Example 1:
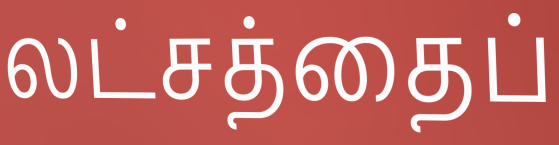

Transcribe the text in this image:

லட்சத்தைப்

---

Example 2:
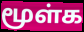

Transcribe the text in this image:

மூள்க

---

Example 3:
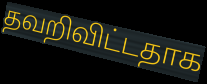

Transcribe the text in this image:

தவறிவிட்டதாக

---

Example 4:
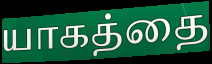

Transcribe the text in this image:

யாகத்தை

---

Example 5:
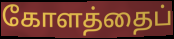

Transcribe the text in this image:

கோளத்தைப்